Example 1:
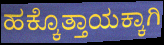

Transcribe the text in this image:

ಹಕ್ಕೊತ್ತಾಯಕ್ಕಾಗಿ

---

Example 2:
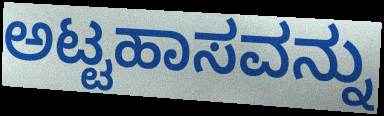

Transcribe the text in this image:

ಅಟ್ಟಹಾಸವನ್ನು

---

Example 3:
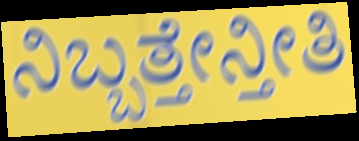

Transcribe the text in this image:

ನಿಬ್ಬತ್ತೇನ್ತೀತಿ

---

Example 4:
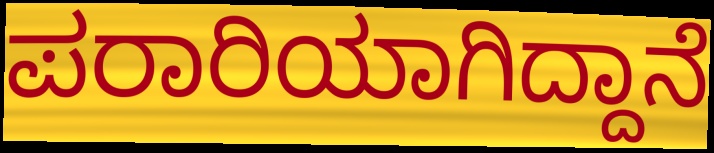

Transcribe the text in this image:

ಪರಾರಿಯಾಗಿದ್ದಾನೆ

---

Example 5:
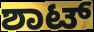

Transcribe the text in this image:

ಶಾಟ್